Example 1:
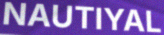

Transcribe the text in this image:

NAUTIYAL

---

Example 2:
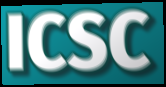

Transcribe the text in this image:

ICSC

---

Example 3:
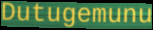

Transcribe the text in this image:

Dutugemunu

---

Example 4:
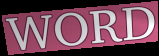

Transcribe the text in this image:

WORD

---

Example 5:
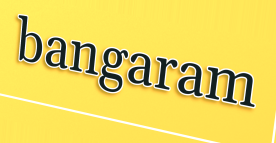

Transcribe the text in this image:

bangaram